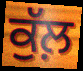
ਕੁੱਲ਼